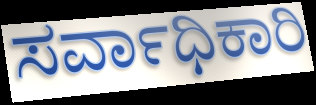
ಸರ್ವಾಧಿಕಾರಿ